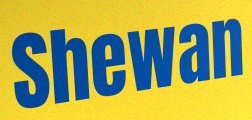
Shewan